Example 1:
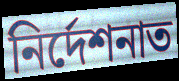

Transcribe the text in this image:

নিৰ্দেশনাত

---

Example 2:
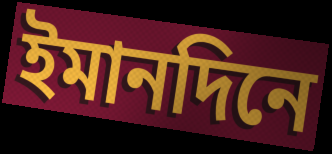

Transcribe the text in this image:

ইমানদিনে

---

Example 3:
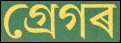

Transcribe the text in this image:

গ্ৰেগৰ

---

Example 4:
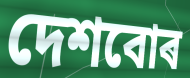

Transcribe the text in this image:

দেশবোৰ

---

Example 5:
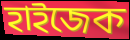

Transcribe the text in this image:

হাইজেক